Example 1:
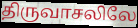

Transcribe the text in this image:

திருவாசலிலே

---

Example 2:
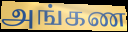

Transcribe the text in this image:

அங்கண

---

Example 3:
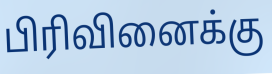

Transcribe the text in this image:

பிரிவினைக்கு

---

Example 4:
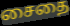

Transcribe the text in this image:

சைதை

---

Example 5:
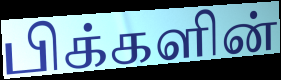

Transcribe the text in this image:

பிக்களின்